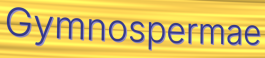
Gymnospermae